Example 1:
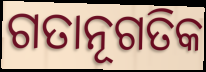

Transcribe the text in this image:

ଗତାନୂଗତିକ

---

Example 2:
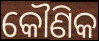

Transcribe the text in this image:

କୌଣିକ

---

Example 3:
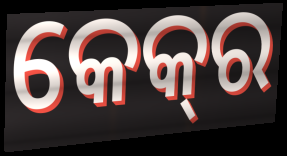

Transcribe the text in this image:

କେକ୍‌ର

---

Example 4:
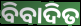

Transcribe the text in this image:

ବିବାଦିତ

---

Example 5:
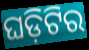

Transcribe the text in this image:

ଘଡ଼ିଟିର